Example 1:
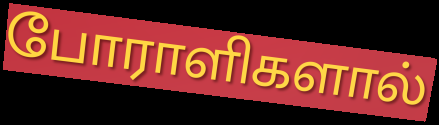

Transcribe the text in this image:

போராளிகளால்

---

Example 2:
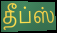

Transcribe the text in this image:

தீப்ஸ்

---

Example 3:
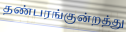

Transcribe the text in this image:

தண்பரங்குன்றத்து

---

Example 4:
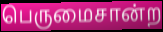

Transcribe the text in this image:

பெருமைசான்ற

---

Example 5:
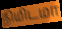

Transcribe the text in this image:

நிமிடமா